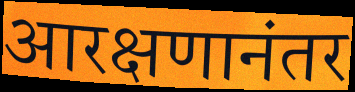
आरक्षणानंतर